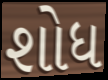
શોધ